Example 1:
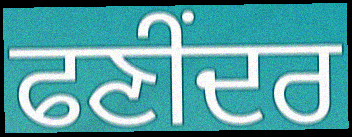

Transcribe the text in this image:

ਫਣੀਂਦਰ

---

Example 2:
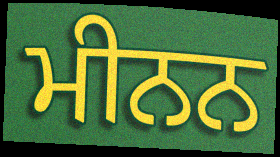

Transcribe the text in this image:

ਮੀਨਨ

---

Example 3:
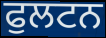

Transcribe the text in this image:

ਫੁਲਟਨ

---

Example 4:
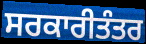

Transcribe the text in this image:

ਸਰਕਾਰੀਤੰਤਰ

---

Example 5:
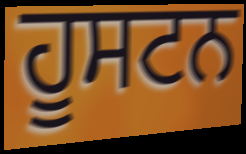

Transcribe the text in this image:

ਹੂਸਟਨ